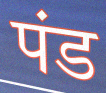
पंड